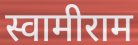
स्वामीराम